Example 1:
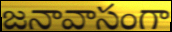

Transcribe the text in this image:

జనావాసంగా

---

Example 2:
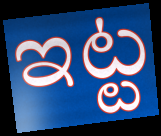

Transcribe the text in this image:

ఇట్ట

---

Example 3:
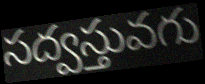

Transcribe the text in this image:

సద్వస్తువగు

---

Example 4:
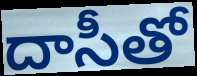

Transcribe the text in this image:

దాసీతో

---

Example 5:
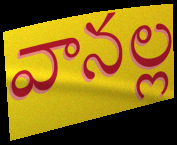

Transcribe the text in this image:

వానల్ల